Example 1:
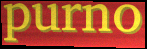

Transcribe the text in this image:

purno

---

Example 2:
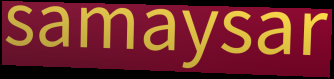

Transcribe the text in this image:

samaysar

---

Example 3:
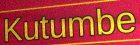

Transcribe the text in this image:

Kutumbe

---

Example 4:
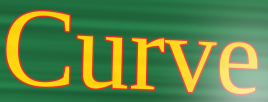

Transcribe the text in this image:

Curve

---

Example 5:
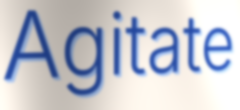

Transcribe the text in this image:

Agitate